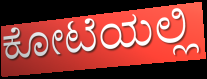
ಕೋಟೆಯಲ್ಲಿ